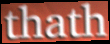
thath